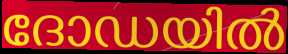
ദോഡയിൽ